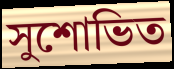
সুশোভিত